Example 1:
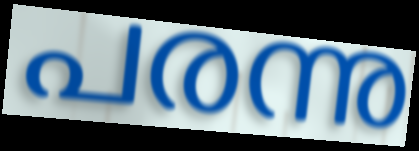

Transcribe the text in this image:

പരന്നു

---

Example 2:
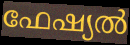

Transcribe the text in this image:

ഫേഷ്യൽ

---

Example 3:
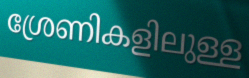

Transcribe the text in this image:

ശ്രേണികളിലുള്ള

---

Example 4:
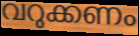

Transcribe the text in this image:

വറുക്കണം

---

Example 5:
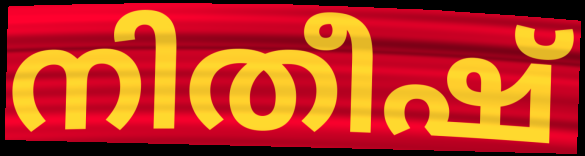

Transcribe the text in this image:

നിതീഷ്